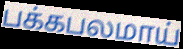
பக்கபலமாய்